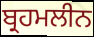
ਬ੍ਰਹਮਲੀਨ